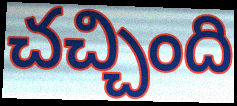
చచ్చింది